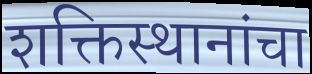
शक्तिस्थानांचा